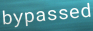
bypassed